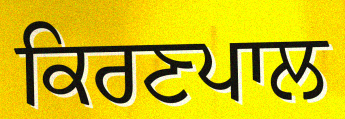
ਕਿਰਣਪਾਲ